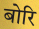
बोरि